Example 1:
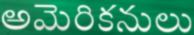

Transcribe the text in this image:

అమెరికనులు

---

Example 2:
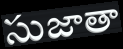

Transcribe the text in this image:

సుజాతా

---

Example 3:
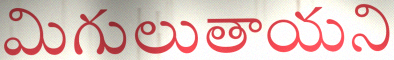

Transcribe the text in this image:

మిగులుతాయని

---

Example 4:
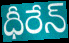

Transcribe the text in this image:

ధీరేన్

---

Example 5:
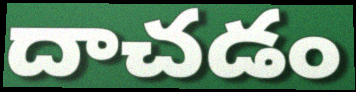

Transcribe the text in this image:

దాచడం